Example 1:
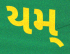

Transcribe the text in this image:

યમ્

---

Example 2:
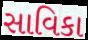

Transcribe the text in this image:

સાવિકા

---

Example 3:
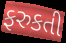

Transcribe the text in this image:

ફરુકતી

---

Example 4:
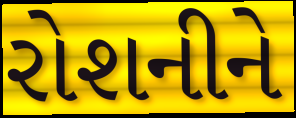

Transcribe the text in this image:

રોશનીને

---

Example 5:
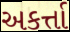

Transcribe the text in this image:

અકર્ત્તા